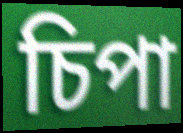
চিপা